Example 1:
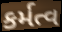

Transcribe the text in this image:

કર્મત્વ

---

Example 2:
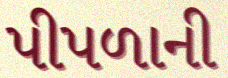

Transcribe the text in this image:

પીપળાની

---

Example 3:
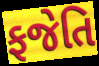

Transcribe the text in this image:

ફજેતિ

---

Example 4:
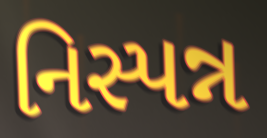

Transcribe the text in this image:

નિસ્પન્ન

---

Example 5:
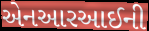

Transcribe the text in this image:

એનઆરઆઈની